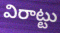
విరాట్టు